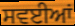
ਸਵਈਆਂ